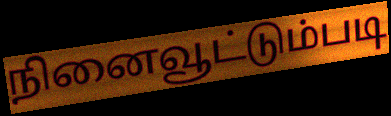
நினைவூட்டும்படி